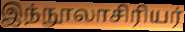
இந்நூலாசிரியர்